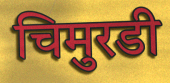
चिमुरडी